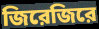
জিরেজিরে